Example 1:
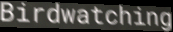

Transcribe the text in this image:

Birdwatching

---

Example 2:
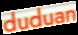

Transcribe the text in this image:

duduan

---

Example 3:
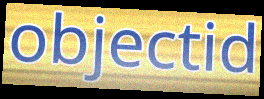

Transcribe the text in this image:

objectid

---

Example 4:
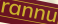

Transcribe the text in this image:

rannu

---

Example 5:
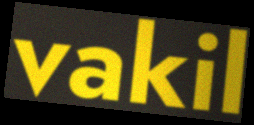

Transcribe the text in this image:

vakil